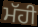
ਮੱਹੀ